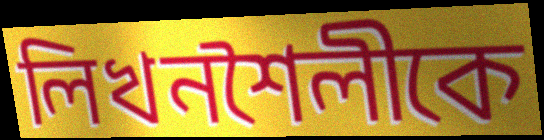
লিখনশৈলীকে